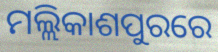
ମଲ୍ଲିକାଶପୁରରେ